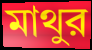
মাথুর